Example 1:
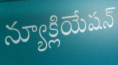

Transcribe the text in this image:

న్యూక్లియేషన్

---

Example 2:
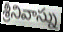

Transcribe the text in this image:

శ్రీనివాస్ను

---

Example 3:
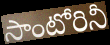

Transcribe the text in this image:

సాంటోరినీ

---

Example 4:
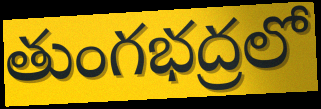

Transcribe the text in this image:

తుంగభద్రలో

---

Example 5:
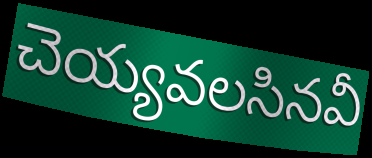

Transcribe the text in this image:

చెయ్యవలసినవీ